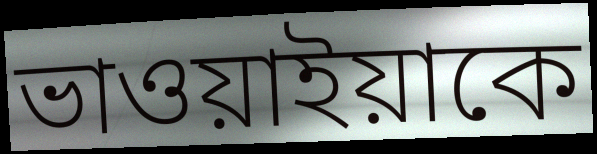
ভাওয়াইয়াকে